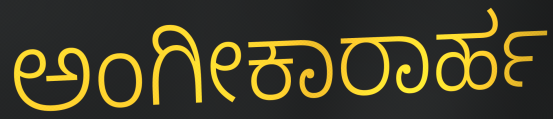
ಅಂಗೀಕಾರಾರ್ಹ